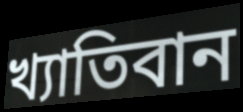
খ্যাতিবান